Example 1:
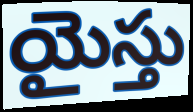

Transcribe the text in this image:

యైస్తు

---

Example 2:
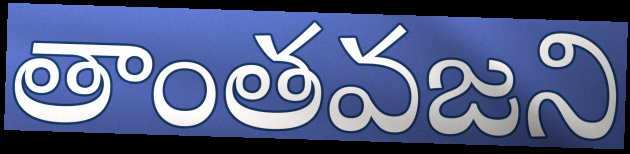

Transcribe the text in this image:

తాంతవజని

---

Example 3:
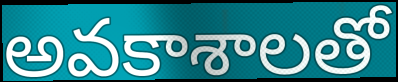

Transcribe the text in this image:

అవకాశాలతో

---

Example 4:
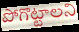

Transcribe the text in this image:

పోగొట్టాలని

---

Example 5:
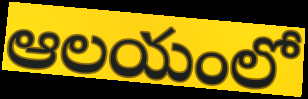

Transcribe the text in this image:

ఆలయంలో